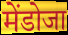
मेंडोजा